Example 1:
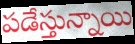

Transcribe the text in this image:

పడేస్తున్నాయి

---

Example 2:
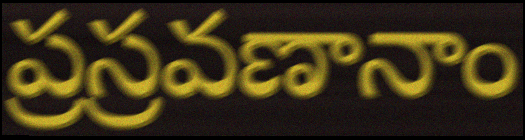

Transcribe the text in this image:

ప్రస్రవణానాం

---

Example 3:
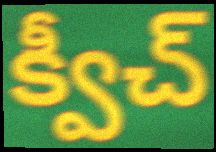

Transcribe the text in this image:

క్వీచ్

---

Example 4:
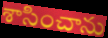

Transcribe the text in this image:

శాసించాను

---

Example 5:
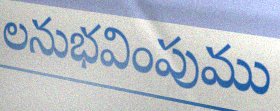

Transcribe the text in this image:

లనుభవింపుము